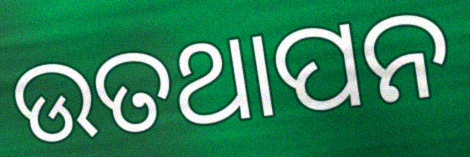
ଉତଥାପନ